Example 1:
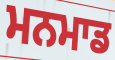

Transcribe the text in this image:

ਮਨਮਾਡ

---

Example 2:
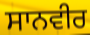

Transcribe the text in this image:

ਸਾਨਵੀਰ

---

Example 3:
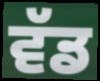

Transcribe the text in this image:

ਵੱਡ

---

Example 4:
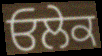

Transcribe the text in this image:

ਓਲੇਕ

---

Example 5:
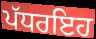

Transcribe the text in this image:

ਪੱਧਰਇਹ